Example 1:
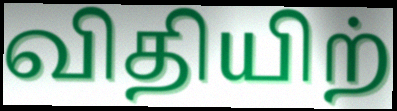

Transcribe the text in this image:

விதியிற்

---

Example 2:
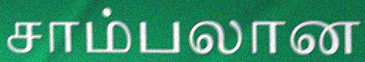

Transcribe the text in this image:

சாம்பலான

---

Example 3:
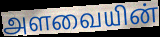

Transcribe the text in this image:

அளவையின்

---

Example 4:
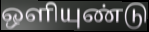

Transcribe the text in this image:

ஒளியுண்டு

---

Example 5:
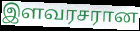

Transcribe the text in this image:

இளவரசரான